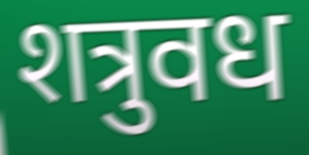
शत्रुवध